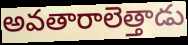
అవతారాలెత్తాడు